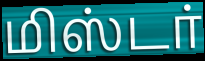
மிஸ்டர்